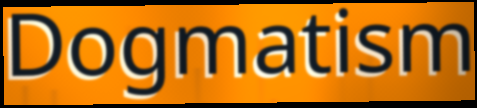
Dogmatism